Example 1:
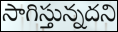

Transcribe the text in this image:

సాగిస్తున్నదని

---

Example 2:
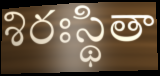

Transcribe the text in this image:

శిరఃస్థితా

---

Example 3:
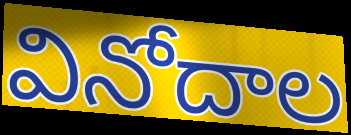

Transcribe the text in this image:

వినోదాల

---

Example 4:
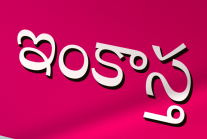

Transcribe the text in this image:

ఇంకాస్త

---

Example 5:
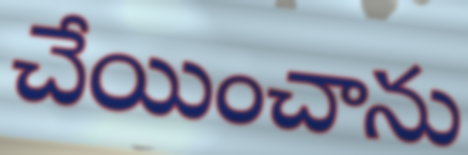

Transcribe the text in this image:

చేయించాను